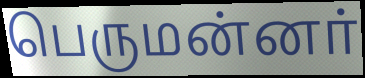
பெருமன்னர்